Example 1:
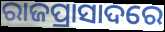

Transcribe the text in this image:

ରାଜପ୍ରାସାଦରେ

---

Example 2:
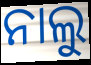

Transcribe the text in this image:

ନାଲୁ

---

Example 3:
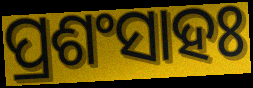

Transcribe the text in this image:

ପ୍ରଶଂସାହଃ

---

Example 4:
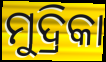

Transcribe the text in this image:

ମୁଦ୍ରିକା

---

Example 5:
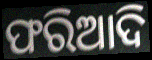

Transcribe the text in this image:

ଫରିଆଦି